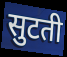
सुटती